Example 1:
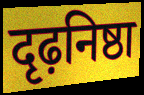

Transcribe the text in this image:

दृढ़निष्ठा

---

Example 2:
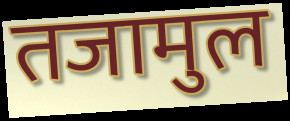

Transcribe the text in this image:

तजामुल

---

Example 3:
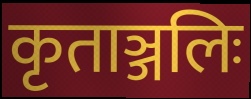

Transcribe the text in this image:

कृताञ्जलिः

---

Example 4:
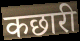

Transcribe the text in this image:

कछारी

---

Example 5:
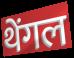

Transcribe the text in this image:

थेंगल